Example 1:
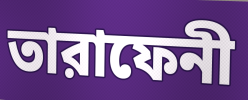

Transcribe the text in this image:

তারাফেনী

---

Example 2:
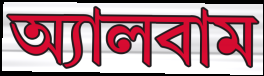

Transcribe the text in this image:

অ্যালবাম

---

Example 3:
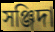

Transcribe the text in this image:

সঞ্জিদা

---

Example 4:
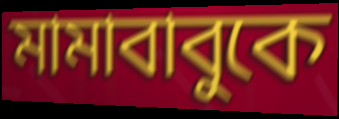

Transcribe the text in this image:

মামাবাবুকে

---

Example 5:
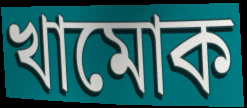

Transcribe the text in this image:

খামোক